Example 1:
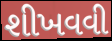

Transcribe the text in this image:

શીખવવી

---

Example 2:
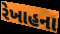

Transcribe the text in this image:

રેખાહના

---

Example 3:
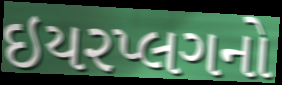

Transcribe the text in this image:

ઇયરપ્લગનો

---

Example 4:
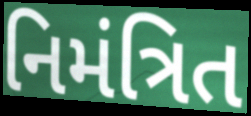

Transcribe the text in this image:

નિમંત્રિત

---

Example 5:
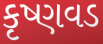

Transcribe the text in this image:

કૃષ્ણવડ